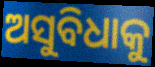
ଅସୁବିଧାକୁ